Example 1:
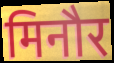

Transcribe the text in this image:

मिनौर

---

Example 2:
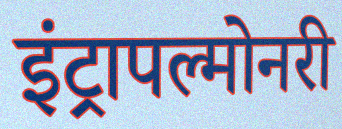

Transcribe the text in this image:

इंट्रापल्मोनरी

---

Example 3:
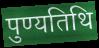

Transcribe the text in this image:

पुण्यतिथि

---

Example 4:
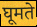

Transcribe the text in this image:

घूमते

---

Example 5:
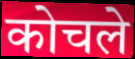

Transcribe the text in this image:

कोचले